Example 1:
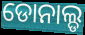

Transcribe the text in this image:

ଡୋନାଲ୍ଡ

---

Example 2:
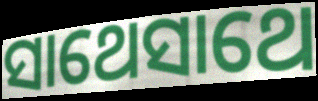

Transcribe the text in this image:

ସାଥେସାଥେ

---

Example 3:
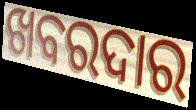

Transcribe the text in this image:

ଖବରଦାର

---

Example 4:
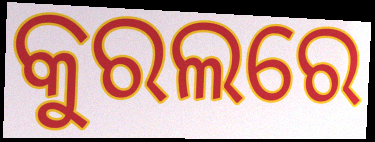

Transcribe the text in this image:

କୁରଲରେ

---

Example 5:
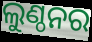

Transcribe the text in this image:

ଲୁଣ୍ଠନର